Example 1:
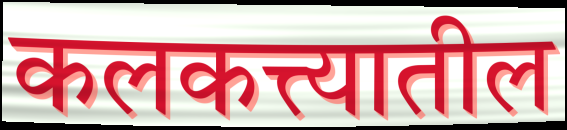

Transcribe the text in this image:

कलकत्त्यातील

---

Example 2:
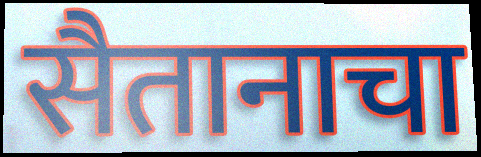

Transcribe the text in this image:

सैतानाचा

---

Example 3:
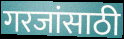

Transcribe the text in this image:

गरजांसाठी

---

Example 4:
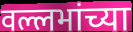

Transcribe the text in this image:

वल्लभांच्या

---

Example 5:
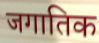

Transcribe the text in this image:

जगातिक